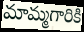
మామ్మగారికి